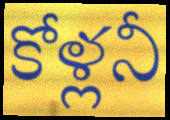
కోళ్లనీ